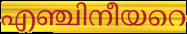
എഞ്ചിനീയറെ